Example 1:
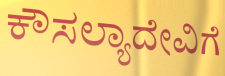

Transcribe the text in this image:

ಕೌಸಲ್ಯಾದೇವಿಗೆ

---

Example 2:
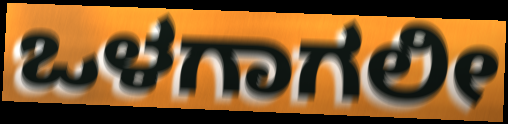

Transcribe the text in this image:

ಒಳಗಾಗಲೀ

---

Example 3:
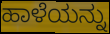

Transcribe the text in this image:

ಹಾಳೆಯನ್ನು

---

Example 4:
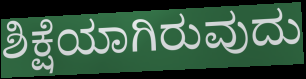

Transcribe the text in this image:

ಶಿಕ್ಷೆಯಾಗಿರುವುದು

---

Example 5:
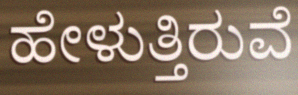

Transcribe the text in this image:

ಹೇಳುತ್ತಿರುವೆ